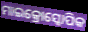
ମାଇକ୍ରୋସ୍କୋପିକ